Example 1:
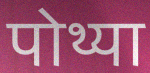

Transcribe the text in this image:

पोथ्या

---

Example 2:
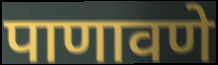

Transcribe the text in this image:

पाणावणे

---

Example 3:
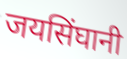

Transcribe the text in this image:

जयसिंघानी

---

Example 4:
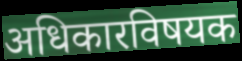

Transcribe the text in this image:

अधिकारविषयक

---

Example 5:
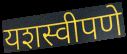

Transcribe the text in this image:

यशस्वीपणे